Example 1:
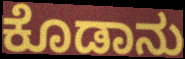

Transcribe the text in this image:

ಕೊಡಾನು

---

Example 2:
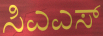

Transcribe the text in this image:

ಸಿಎಎಸ್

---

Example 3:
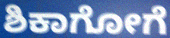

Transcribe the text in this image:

ಶಿಕಾಗೋಗೆ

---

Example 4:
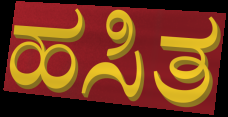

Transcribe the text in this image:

ಹಸಿತ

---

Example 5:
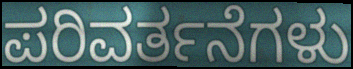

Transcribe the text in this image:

ಪರಿವರ್ತನೆಗಳು